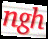
ngh